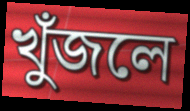
খুঁজলে